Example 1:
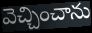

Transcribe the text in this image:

వెచ్చించాను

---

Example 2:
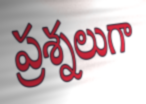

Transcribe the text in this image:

ప్రశ్నలుగా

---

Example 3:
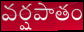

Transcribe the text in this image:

వర్షపాతం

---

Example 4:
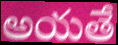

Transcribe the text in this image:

అయతే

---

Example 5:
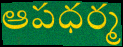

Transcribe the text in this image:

ఆపధర్మ